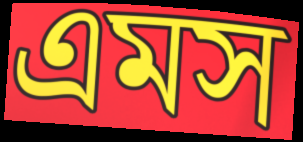
এমস